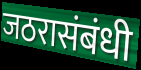
जठरासंबंधी